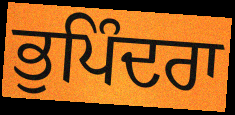
ਭੁਪਿੰਦਰਾ